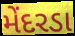
મેંદરડા